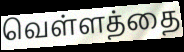
வெள்ளத்தை